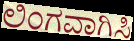
ಲಿಂಗವಾಗಿಸಿ